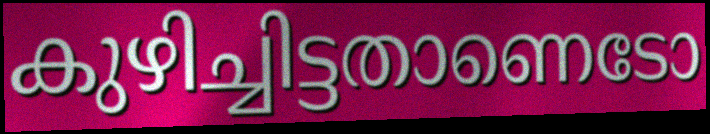
കുഴിച്ചിട്ടതാണെടോ